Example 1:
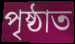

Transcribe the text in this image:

পৃষ্ঠাত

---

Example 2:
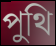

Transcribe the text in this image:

পুথি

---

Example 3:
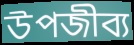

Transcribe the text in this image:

উপজীব্য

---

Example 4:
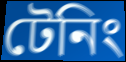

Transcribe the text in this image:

টেনিং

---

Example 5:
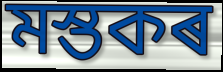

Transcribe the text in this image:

মস্তকৰ